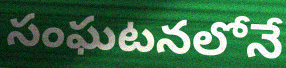
సంఘటనలోనే